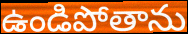
ఉండిపోతాను